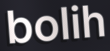
bolih